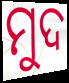
ମୁଦ